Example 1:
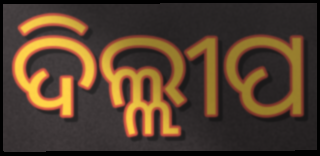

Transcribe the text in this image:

ଦିଲ୍ଲୀପ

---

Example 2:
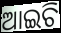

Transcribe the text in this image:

ଆଇଚି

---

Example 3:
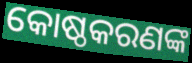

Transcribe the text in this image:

କୋଷ୍ଠକରଣଙ୍କ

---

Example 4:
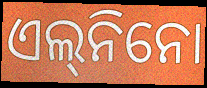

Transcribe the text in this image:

ଏଲ୍‌ନିନୋ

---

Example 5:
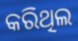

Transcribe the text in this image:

କରିଥିଲ